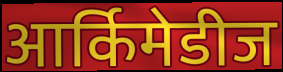
आर्किमेडीज